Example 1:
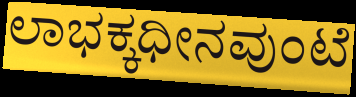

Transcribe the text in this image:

ಲಾಭಕ್ಕಧೀನವುಂಟೆ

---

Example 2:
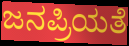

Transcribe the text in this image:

ಜನಪ್ರಿಯತೆ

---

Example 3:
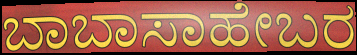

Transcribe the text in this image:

ಬಾಬಾಸಾಹೇಬರ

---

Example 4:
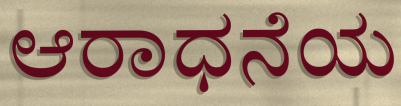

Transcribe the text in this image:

ಆರಾಧನೆಯ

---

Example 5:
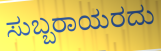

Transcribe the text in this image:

ಸುಬ್ಬರಾಯರದು